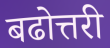
बढोत्तरी